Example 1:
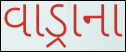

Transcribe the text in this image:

વાડ્રાના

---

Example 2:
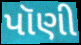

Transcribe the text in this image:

પૉણી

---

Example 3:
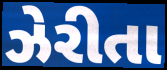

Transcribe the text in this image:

ઝેરીતા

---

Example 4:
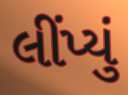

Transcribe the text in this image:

લીંપ્યું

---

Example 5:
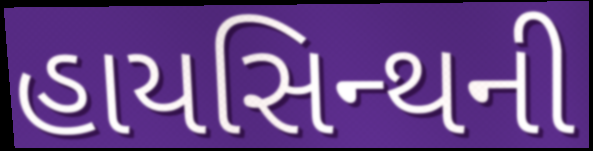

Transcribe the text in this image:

હાયસિન્થની